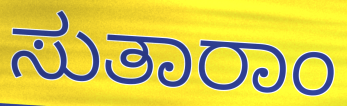
ಸುತಾರಾಂ